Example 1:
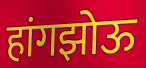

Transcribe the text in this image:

हांगझोऊ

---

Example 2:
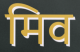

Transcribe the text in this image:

मिव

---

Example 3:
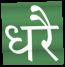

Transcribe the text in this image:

धरै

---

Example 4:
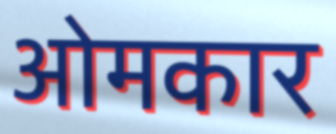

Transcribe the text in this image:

ओमकार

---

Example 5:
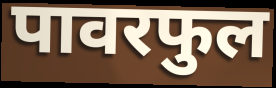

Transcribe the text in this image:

पावरफुल